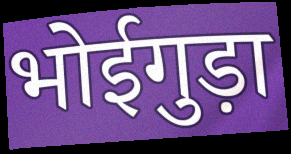
भोईगुड़ा